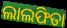
ଲାଲଫିତା